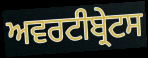
ਅਵਰਟੀਬ੍ਰੇਟਸ